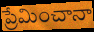
ప్రేమించానా